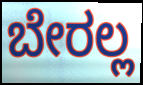
ಬೇರಲ್ಲ